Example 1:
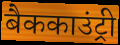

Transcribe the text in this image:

बैककाउंट्री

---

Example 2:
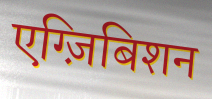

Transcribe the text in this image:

एग्ज़िबिशन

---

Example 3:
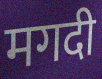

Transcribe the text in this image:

मगदी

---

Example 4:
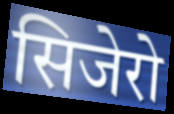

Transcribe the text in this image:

सिजेरो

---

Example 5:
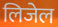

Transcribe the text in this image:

लिजेल